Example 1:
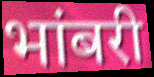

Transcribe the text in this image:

भांबरी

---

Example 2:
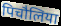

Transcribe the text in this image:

पिचौलिया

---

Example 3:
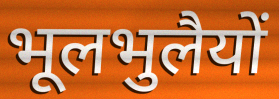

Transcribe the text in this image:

भूलभुलैयों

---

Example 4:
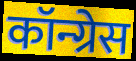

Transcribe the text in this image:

कॉन्ग्रेस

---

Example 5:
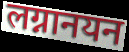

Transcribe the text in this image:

लग्नानयन